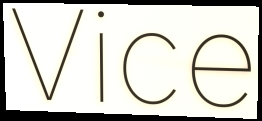
Vice